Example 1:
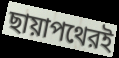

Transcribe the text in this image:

ছায়াপথেরই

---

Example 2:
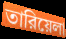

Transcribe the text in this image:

তারিয়েলা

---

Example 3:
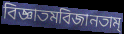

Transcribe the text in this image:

বিজ্ঞাতমবিজানতাম্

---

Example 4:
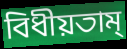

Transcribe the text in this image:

বিধীয়তাম্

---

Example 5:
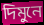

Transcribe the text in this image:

দিমুনে